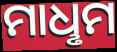
ମାଧୢମ